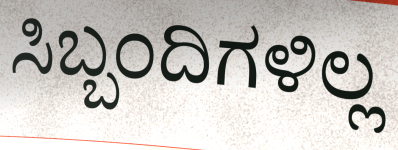
ಸಿಬ್ಬಂದಿಗಳಿಲ್ಲ